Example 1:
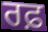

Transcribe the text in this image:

ਰਫ਼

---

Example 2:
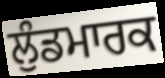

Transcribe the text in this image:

ਲੁੰਡਮਾਰਕ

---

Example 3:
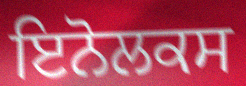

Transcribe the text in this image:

ਇਨੋਲਕਸ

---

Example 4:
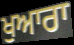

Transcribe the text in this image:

ਖੁਆਰਾ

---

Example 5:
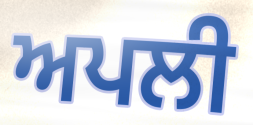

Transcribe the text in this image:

ਅਪਲੀ